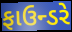
ફાઉન્ડરે